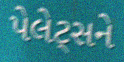
પેલેટ્સને